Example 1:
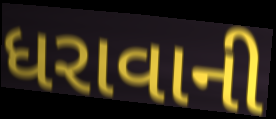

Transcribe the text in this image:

ધરાવાની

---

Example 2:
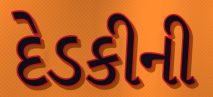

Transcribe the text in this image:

દેડકીની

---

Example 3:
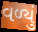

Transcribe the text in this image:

વળ્યું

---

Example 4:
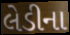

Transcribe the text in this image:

લેડીના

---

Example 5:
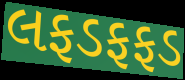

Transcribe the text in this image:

લફડફફડ